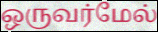
ஒருவர்மேல்